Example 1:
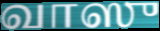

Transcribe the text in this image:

வாஸு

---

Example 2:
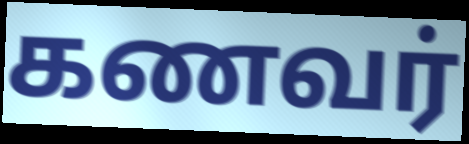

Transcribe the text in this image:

கணவர்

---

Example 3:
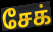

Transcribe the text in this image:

சேக்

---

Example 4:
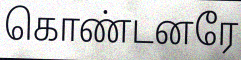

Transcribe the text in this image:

கொண்டனரே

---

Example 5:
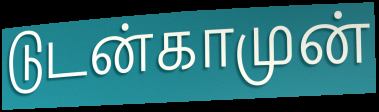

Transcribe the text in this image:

டுடன்காமுன்